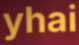
yhai